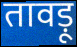
तावड़ू